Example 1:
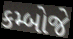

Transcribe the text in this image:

કમ્બોજે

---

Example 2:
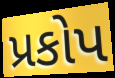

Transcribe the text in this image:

પ્રકોપ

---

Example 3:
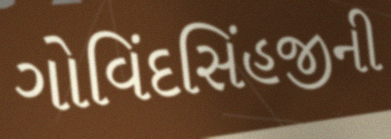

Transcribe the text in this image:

ગોવિંદસિંહજીની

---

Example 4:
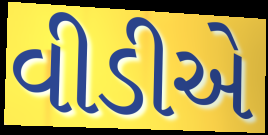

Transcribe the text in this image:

વીડીએ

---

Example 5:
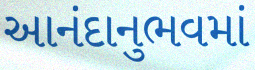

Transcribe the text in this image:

આનંદાનુભવમાં